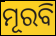
ମୂରବି